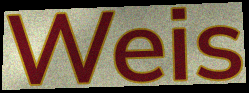
Weis